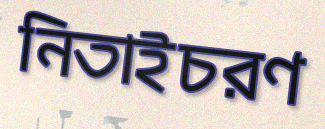
নিতাইচরণ